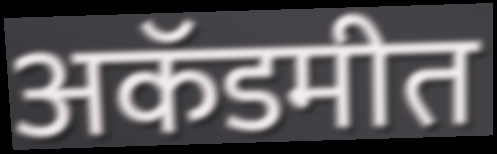
अकॅडमीत